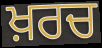
ਖ਼ਰਚ